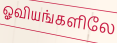
ஓவியங்களிலே